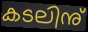
കടലിനു്